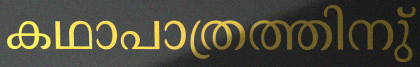
കഥാപാത്രത്തിനു്